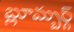
బ్లూమ్బర్గ్